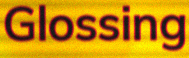
Glossing